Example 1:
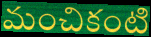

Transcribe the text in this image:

మంచికంటి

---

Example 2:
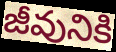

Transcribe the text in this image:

జీవునికి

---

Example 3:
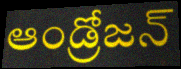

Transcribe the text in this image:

ఆండ్రోజన్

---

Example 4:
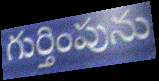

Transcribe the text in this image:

గుర్తింపును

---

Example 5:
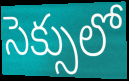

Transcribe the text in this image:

సెక్సులో